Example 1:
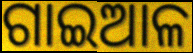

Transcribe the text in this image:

ଗାଇଆଳ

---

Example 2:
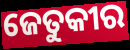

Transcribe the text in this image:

ଜେତୁକୀର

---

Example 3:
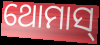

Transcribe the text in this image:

ଥୋମାସ୍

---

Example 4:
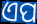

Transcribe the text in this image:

ଏପ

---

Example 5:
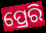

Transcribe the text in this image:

ପ୍ରେରି